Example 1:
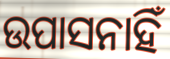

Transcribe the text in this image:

ଉପାସନାହିଁ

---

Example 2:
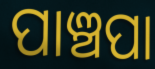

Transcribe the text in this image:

ପାଞ୍ଚପା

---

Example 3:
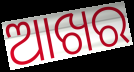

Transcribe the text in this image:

ଆଖର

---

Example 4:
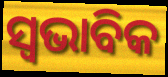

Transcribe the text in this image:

ସ୍ୱଭାବିକ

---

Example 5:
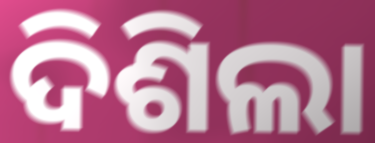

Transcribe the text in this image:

ଦିଶିଲା